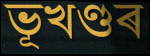
ভূখণ্ডৰ